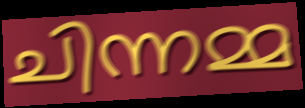
ചിന്നമ്മ